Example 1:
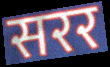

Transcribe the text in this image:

सरर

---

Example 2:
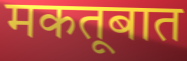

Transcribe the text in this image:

मकतूबात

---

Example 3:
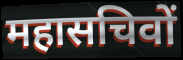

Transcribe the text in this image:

महासचिवों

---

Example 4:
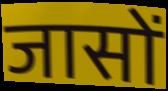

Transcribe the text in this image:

जासों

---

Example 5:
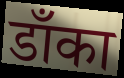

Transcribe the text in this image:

डाँका